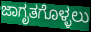
ಜಾಗೃತಗೊಳ್ಳಲು